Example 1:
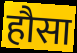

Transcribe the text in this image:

हौसा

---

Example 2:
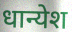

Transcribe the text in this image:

धान्येश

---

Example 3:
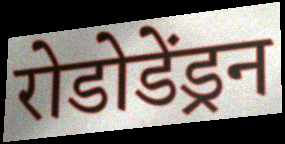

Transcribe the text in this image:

रोडोडेंड्रन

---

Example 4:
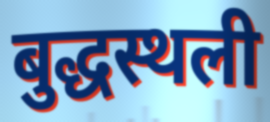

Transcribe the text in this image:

बुद्धस्थली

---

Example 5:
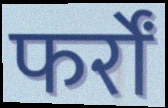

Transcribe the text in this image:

फर्रों